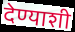
देण्याशी